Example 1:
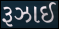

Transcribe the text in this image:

રૂઝાઈ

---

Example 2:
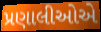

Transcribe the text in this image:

પ્રણાલીઓએ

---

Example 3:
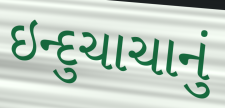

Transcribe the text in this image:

ઇન્દુચાચાનું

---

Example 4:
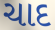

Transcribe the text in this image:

ચાદ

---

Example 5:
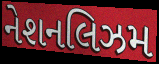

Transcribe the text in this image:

નેશનલિઝમ